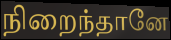
நிறைந்தானே